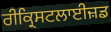
ਰੀਕ੍ਰਿਸਟਲਾਈਜ਼ਡ